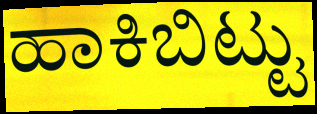
ಹಾಕಿಬಿಟ್ಟು